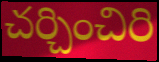
చర్చించిరి